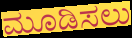
ಮೂಡಿಸಲು